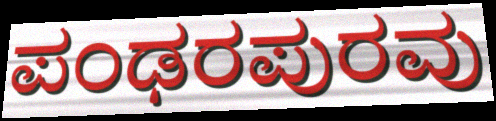
ಪಂಢರಪುರವು